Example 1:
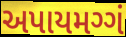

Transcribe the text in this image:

અપાયમગ્ગં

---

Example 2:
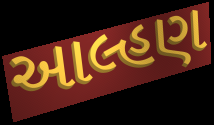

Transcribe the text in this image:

આલ્હણ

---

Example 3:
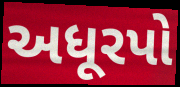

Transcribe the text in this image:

અધૂરપો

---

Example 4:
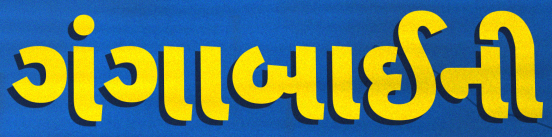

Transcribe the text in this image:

ગંગાબાઈની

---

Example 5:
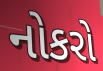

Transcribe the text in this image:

નોકરો